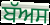
ਬੱਅਸ